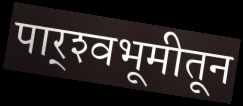
पार्श्वभूमीतून